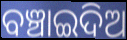
ବଞ୍ଚାଇଦିଅ